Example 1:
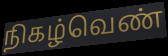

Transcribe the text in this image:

நிகழ்வெண்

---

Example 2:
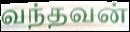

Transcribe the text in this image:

வந்தவன்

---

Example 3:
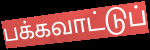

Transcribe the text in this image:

பக்கவாட்டுப்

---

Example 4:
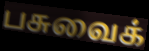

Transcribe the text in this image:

பசுவைக்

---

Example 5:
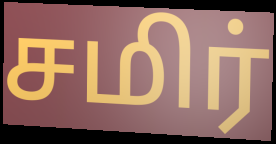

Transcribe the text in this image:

சமிர்